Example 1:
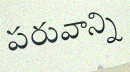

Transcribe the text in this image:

పరువాన్ని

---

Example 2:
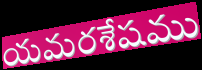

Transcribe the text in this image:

యమరశేషము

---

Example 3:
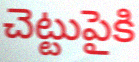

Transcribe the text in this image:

చెట్టుపైకి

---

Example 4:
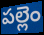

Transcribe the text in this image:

పల్లెం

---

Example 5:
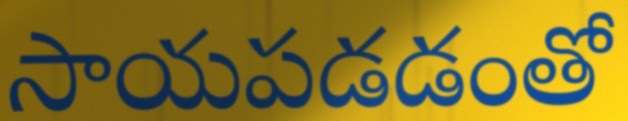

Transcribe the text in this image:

సాయపడడంతో